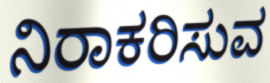
ನಿರಾಕರಿಸುವ